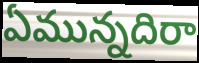
ఏమున్నదిరా